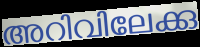
അറിവിലേക്കു